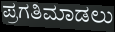
ಪ್ರಗತಿಮಾಡಲು